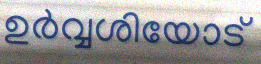
ഉർവ്വശിയോട്